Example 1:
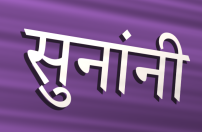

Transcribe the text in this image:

सुनांनी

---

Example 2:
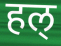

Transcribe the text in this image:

हल्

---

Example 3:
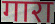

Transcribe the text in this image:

गारा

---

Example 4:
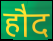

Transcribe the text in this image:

हौद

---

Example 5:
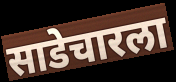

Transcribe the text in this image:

साडेचारला